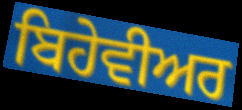
ਬਿਹੇਵੀਅਰ